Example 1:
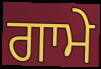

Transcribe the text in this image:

ਗਾਮੇ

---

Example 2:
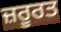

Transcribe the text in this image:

ਜ਼ਰੂਰਤ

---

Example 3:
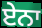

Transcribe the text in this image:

ਏਨਾ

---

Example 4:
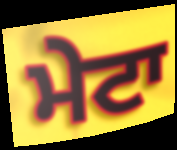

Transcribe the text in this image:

ਮੇਟਾ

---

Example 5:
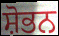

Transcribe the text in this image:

ਸ਼ੋਭਨ